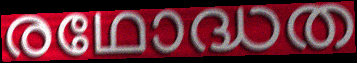
രഥോദ്ധത